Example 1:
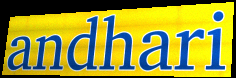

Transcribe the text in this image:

andhari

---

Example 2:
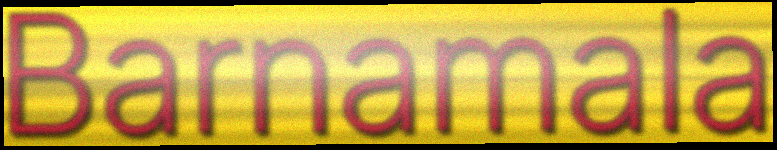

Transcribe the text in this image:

Barnamala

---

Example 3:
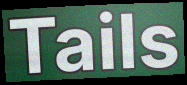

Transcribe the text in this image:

Tails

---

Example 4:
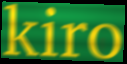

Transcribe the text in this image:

kiro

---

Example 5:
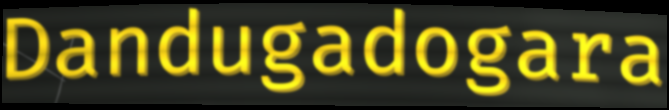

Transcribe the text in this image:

Dandugadogara